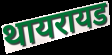
थायरायड